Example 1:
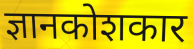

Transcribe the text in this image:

ज्ञानकोशकार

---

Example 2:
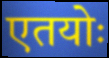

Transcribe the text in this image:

एतयोः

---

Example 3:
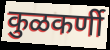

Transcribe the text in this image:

कुळकर्णी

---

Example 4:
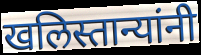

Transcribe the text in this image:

खलिस्तान्यांनी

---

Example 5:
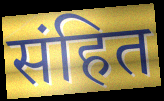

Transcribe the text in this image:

संहित